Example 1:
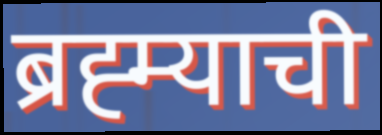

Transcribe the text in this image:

ब्रह्म्याची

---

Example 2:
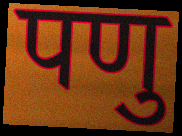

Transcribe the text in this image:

पणु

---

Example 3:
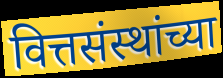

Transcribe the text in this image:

वित्तसंस्थांच्या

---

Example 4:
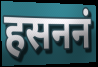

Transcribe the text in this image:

हसननं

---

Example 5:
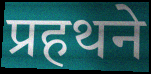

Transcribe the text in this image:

प्रहथने